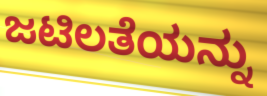
ಜಟಿಲತೆಯನ್ನು